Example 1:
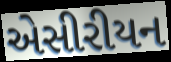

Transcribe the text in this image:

એસીરીયન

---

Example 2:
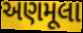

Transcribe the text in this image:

અણમૂલા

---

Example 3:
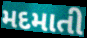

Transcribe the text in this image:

મદમાતી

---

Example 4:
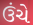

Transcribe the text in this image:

ઉંચે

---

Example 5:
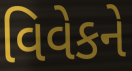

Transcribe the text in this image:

વિવેકને